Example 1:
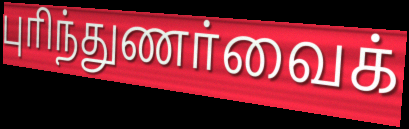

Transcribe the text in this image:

புரிந்துணர்வைக்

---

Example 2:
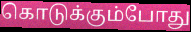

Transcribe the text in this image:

கொடுக்கும்போது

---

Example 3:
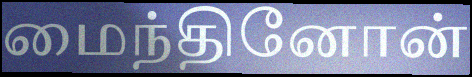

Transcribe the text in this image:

மைந்தினோன்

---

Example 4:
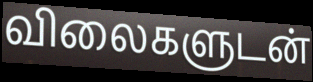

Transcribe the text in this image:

விலைகளுடன்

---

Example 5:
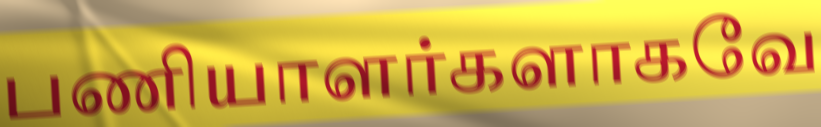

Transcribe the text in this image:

பணியாளர்களாகவே